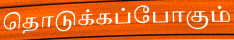
தொடுக்கப்போகும்